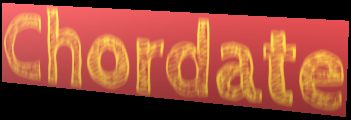
Chordate